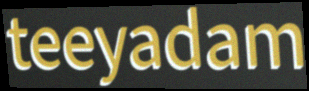
teeyadam